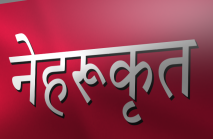
नेहरूकृत